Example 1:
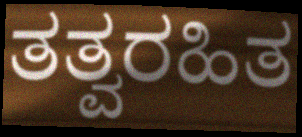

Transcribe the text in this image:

ತತ್ವರಹಿತ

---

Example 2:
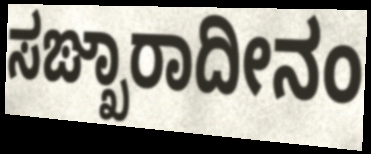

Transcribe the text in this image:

ಸಙ್ಖಾರಾದೀನಂ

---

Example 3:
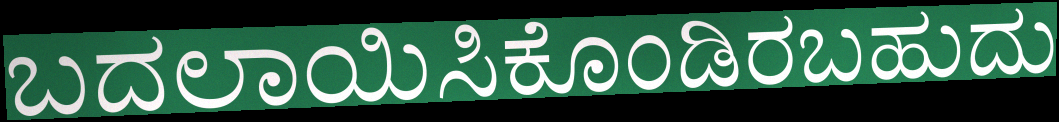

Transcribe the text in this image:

ಬದಲಾಯಿಸಿಕೊಂಡಿರಬಹುದು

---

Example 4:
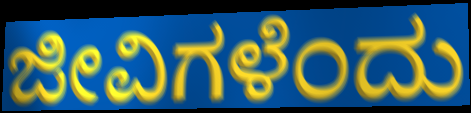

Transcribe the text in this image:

ಜೀವಿಗಳೆಂದು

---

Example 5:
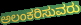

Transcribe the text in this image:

ಅಲಂಕರಿಸುವರು